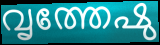
വൃത്തേഷു